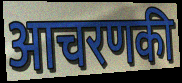
आचरणकी